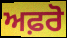
ਅਫ਼ਰੋ